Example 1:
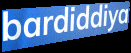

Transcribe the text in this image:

bardiddiya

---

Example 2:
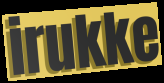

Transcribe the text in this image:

irukke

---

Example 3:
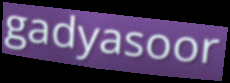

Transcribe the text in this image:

gadyasoor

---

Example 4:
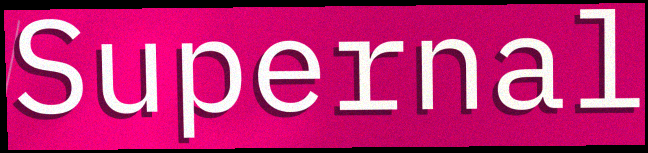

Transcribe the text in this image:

Supernal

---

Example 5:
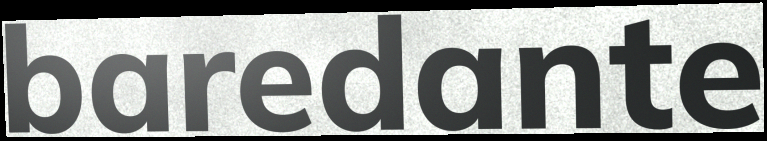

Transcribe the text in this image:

baredante